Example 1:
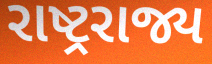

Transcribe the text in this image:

રાષ્ટ્રરાજ્ય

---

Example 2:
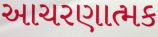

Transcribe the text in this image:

આચરણાત્મક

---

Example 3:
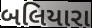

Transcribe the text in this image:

બલિયારા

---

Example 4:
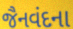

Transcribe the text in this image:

જૈનવંદના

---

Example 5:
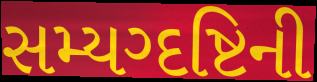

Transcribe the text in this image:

સમ્યગ્દષ્ટિની